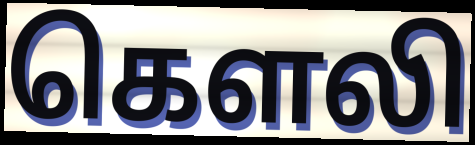
கௌலி